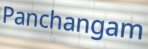
Panchangam